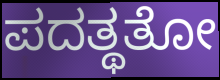
ಪದತ್ಥತೋ